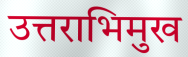
उत्तराभिमुख